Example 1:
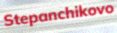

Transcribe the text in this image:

Stepanchikovo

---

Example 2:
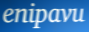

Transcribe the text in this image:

enipavu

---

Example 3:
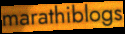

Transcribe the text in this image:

marathiblogs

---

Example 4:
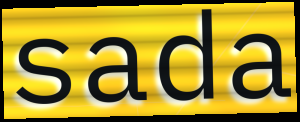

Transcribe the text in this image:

sada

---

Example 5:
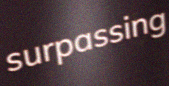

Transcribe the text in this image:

surpassing